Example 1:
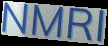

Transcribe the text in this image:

NMRI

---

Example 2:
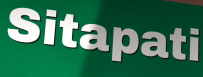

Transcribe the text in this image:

Sitapati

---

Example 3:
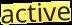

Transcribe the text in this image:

active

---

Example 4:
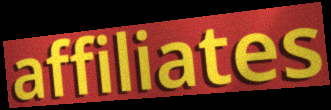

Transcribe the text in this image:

affiliates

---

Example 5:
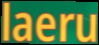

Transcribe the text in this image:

laeru